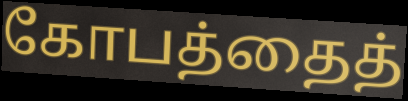
கோபத்தைத்